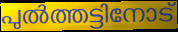
പുൽത്തട്ടിനോട്